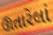
ઊતારેલાં